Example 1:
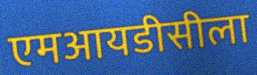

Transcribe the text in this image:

एमआयडीसीला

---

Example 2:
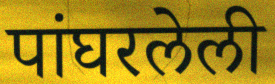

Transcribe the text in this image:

पांघरलेली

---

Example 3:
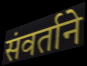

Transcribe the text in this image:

संवर्ताने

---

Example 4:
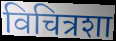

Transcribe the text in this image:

विचित्रशा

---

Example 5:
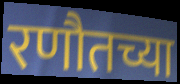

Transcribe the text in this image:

रणौतच्या